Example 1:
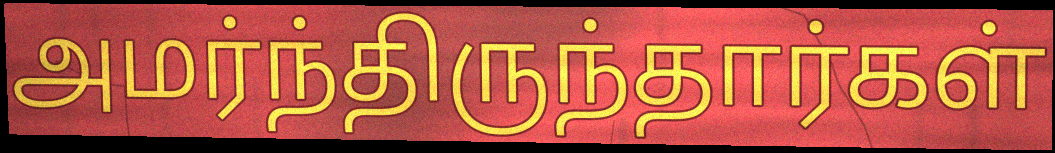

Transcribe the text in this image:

அமர்ந்திருந்தார்கள்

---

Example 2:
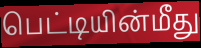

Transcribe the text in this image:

பெட்டியின்மீது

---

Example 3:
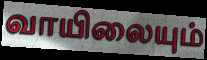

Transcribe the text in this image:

வாயிலையும்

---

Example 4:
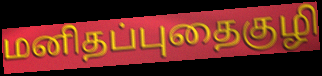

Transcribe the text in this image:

மனிதப்புதைகுழி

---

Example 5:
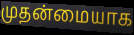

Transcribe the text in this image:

முதன்மையாக